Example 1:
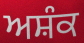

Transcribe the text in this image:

ਅਸ਼ੰਕ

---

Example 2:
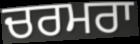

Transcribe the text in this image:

ਚਰਮਰਾ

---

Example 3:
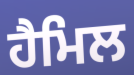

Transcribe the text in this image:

ਹੈਮਿਲ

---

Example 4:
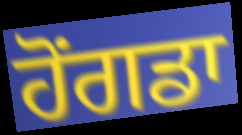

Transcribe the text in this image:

ਹੋਂਗਡਾ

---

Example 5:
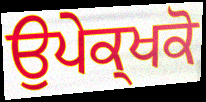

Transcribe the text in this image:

ਉਪੇਕ੍ਖਕੋ